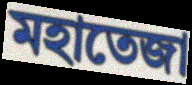
মহাতেজা